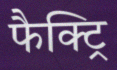
फैक्ट्रि